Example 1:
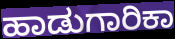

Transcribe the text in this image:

ಹಾಡುಗಾರಿಕಾ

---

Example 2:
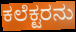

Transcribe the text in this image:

ಕಲೆಕ್ಟರನು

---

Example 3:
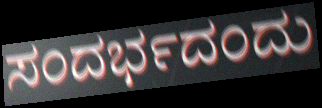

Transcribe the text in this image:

ಸಂದರ್ಭದಂದು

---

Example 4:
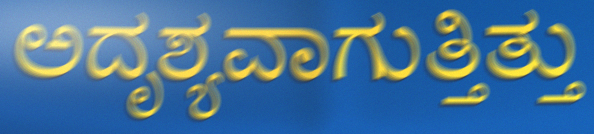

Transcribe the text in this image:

ಅದೃಶ್ಯವಾಗುತ್ತಿತ್ತು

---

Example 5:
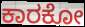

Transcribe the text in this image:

ಕಾರಕೋ